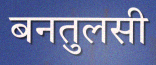
बनतुलसी